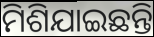
ମିଶିଯାଇଛନ୍ତି